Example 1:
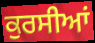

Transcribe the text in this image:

ਕੁਰਸੀਆਂ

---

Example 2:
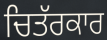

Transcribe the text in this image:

ਚਿਤੱਰਕਾਰ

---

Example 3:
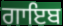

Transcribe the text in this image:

ਗਾਇਬ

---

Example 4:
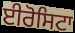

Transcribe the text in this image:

ਈਰੋਸਿਟਾ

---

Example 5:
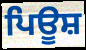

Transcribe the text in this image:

ਪਿਊਸ਼